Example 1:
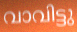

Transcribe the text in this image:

വാവിട്ടു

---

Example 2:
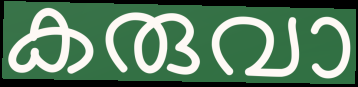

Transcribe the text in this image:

കരുവാ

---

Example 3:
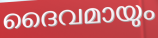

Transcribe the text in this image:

ദൈവമായും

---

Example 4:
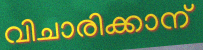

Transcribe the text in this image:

വിചാരിക്കാന്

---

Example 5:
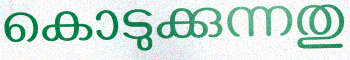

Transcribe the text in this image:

കൊടുക്കുന്നതു